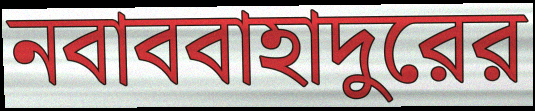
নবাববাহাদুরের